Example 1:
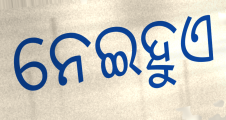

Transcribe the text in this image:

ନେଇହୁଏ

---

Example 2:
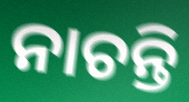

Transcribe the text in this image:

ନାଚନ୍ତି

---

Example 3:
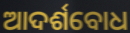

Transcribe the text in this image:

ଆଦର୍ଶବୋଧ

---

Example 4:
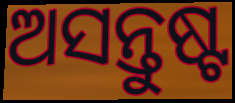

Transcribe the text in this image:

ଅସନ୍ତୁଷ୍ଟ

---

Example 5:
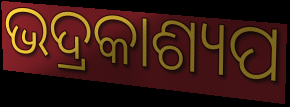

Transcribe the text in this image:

ଭଦ୍ରକାଶ୍ୟପ